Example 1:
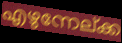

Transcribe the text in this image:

എഴുന്നേല്ക്ക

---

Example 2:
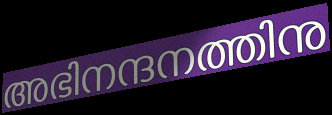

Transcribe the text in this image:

അഭിനന്ദനത്തിനു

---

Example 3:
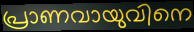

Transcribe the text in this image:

പ്രാണവായുവിനെ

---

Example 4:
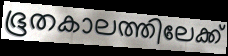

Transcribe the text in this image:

ഭൂതകാലത്തിലേക്ക്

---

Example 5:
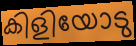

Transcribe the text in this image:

കിളിയോടു